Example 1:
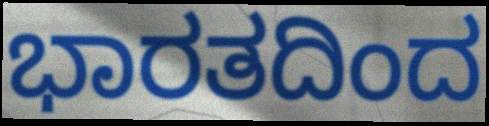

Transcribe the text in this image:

ಭಾರತದಿಂದ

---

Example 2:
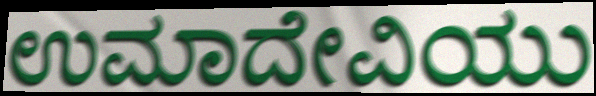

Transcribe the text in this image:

ಉಮಾದೇವಿಯು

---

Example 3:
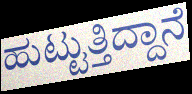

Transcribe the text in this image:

ಹುಟ್ಟುತ್ತಿದ್ದಾನೆ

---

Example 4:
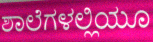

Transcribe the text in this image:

ಶಾಲೆಗಳಲ್ಲಿಯೂ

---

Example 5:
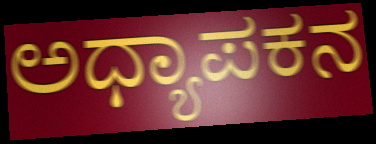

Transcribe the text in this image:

ಅಧ್ಯಾಪಕನ